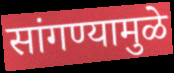
सांगण्यामुळे